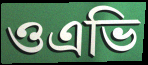
ওএভি